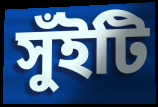
সুঁইটি